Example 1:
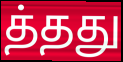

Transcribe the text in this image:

த்தது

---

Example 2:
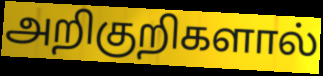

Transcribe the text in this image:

அறிகுறிகளால்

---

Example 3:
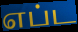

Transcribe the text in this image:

எப்ட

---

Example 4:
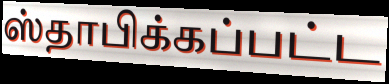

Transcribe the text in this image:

ஸ்தாபிக்கப்பட்ட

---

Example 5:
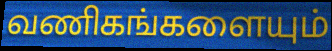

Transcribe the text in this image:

வணிகங்களையும்